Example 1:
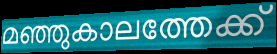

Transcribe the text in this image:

മഞ്ഞുകാലത്തേക്ക്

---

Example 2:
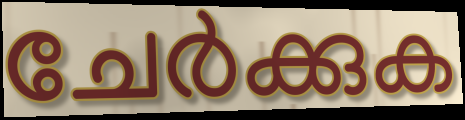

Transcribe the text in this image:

ചേർക്കുക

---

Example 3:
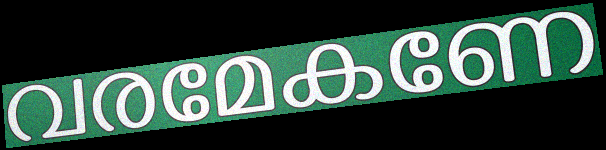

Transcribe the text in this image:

വരമേകണേ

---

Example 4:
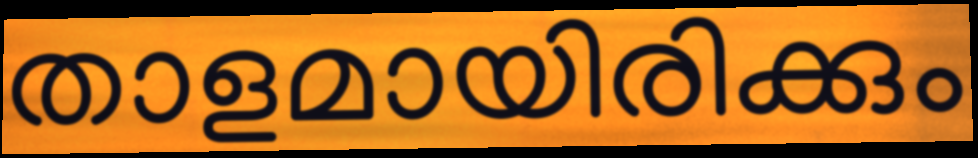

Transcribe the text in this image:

താളമായിരിക്കും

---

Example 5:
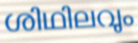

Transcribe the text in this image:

ശിഥിലവും